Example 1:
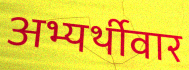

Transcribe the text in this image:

अभ्यर्थीवार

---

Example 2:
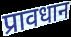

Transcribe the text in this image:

प्रावधान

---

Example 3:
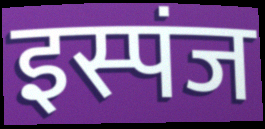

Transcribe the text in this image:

इस्पंज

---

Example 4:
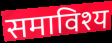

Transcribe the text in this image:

समाविश्य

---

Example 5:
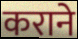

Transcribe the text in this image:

कराने